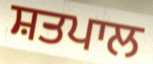
ਸ਼ਤਪਾਲ